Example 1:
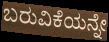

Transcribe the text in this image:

ಬರುವಿಕೆಯನ್ನೇ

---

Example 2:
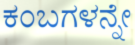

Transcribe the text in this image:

ಕಂಬಗಳನ್ನೇ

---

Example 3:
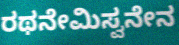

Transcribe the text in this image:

ರಥನೇಮಿಸ್ವನೇನ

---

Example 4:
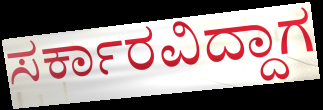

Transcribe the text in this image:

ಸರ್ಕಾರವಿದ್ದಾಗ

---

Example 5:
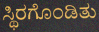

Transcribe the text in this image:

ಸ್ಥಿರಗೊಂಡಿತು